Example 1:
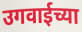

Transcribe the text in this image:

उगवाईच्या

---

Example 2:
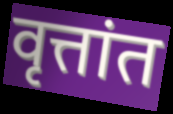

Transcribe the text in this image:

वृत्तांत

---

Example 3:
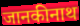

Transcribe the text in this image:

जानकीनाथ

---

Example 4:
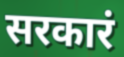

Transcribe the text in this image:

सरकारं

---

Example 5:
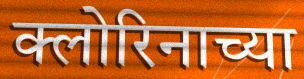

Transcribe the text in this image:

क्लोरिनाच्या